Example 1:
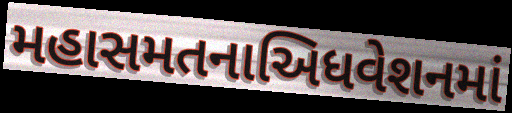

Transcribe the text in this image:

મહાસમતનાઅિધવેશનમાં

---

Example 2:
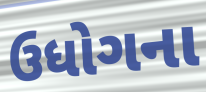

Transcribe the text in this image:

ઉધોગના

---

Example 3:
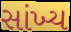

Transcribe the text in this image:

સાંખ્ય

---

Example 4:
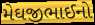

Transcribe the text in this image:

મેઘજીભાઈનો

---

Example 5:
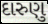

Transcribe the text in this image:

દારુણુ